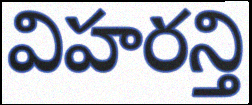
విహరన్తి